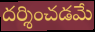
దర్శించడమే